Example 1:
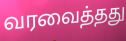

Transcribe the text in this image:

வரவைத்தது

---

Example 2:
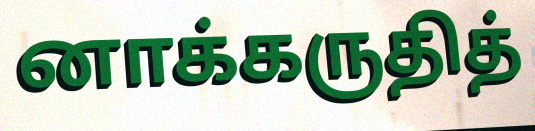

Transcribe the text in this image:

னாக்கருதித்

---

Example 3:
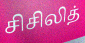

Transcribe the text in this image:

சிசிலித்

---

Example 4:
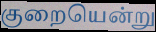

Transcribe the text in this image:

குறையென்று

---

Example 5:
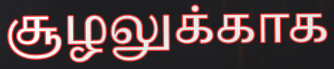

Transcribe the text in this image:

சூழலுக்காக